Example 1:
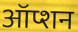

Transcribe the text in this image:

ऑप्‍शन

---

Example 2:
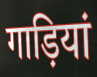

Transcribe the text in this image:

गाड़ियां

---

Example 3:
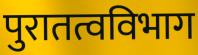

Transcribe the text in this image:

पुरातत्वविभाग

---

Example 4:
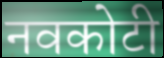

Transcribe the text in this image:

नवकोटी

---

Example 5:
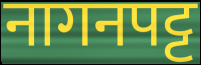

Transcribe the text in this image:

नागनपट्ट